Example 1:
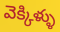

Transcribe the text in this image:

వెక్కిళ్ళు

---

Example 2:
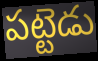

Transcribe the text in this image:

పట్టెడు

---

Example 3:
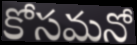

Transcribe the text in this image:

కోసమనో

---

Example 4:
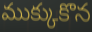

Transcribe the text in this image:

ముక్కుకొన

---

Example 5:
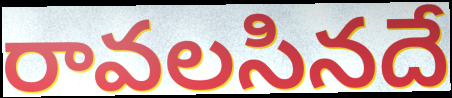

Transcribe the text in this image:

రావలసినదే